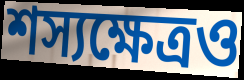
শস্যক্ষেত্রও